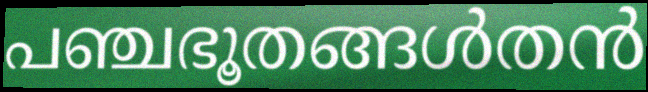
പഞ്ചഭൂതങ്ങൾതൻ